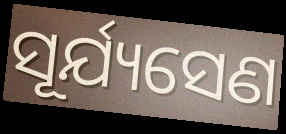
ସୂର୍ଯ୍ୟସେଣ